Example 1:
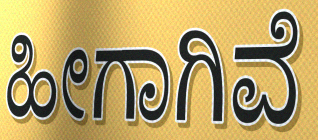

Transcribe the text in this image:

ಹೀಗಾಗಿವೆ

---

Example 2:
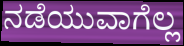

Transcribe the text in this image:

ನಡೆಯುವಾಗೆಲ್ಲ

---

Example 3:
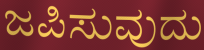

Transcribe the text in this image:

ಜಪಿಸುವುದು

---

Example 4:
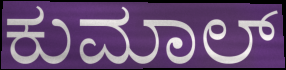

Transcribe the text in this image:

ಕುಮಾಲ್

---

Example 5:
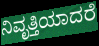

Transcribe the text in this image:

ನಿವೃತ್ತಿಯಾದರೆ